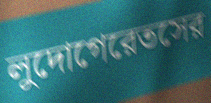
লুদোগেরেতসের